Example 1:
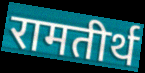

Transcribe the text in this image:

रामतीर्थ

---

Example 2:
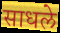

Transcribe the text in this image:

साधले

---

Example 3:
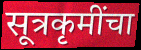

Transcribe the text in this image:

सूत्रकृमींचा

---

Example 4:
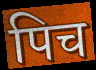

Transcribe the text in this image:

पिच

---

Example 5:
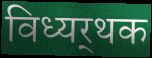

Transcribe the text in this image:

विध्यर्थक